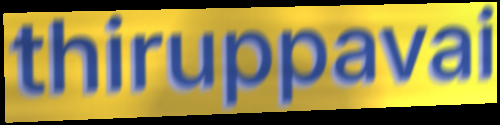
thiruppavai